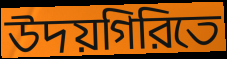
উদয়গিরিতে